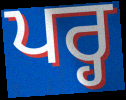
ਪਰ੍ਹ